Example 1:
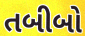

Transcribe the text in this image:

તબીબો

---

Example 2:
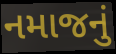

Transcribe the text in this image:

નમાજનું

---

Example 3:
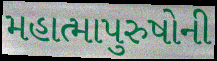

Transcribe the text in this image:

મહાત્માપુરુષોની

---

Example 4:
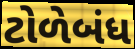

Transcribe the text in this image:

ટોળેબંધ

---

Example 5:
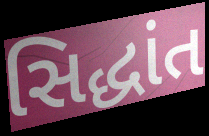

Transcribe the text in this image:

સિદ્ધાંત